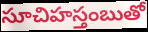
సూచిహస్తంబుతో